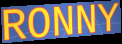
RONNY